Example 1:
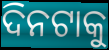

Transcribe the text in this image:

ଦିନଟାକୁ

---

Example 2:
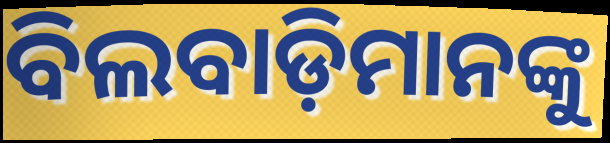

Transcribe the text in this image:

ବିଲବାଡ଼ିମାନଙ୍କୁ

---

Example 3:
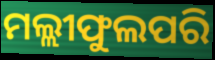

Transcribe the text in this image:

ମଲ୍ଲୀଫୁଲପରି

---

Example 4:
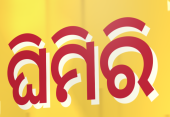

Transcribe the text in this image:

ଘିମିରି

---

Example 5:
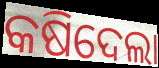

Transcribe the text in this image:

କଷିଦେଲା